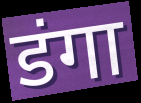
डंगा